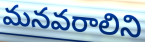
మనవరాలిని